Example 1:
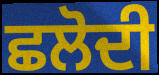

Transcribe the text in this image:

ਛਲੋਦੀ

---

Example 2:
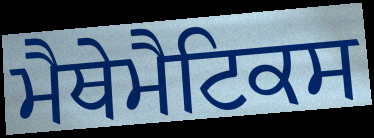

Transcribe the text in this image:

ਮੈਥੇਮੈਟਿਕਸ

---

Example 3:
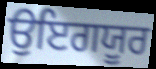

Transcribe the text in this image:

ਉਇਗਯੂਰ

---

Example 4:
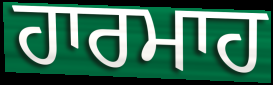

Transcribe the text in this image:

ਹਾਰਮਾਹ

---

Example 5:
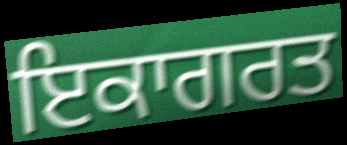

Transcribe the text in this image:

ਇਕਾਗਰਤ